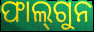
ଫାଲ୍‍ଗୁନ